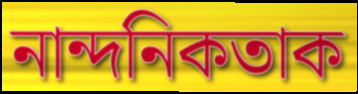
নান্দনিকতাক